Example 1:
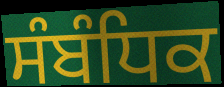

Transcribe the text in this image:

ਸੰਬੰਧਿਕ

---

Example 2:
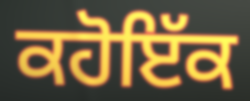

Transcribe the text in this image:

ਕਹੋਇੱਕ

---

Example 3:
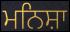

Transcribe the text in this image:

ਮਨਿਸ਼ਾ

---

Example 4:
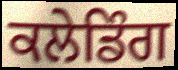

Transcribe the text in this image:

ਕਲੇਡਿੰਗ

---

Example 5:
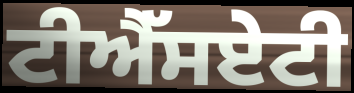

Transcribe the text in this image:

ਟੀਐੱਸਏਟੀ